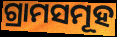
ଗ୍ରାମସମୂହ